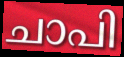
ചാപി